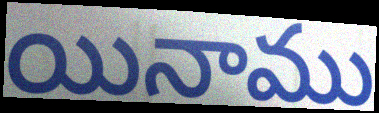
యినాము